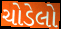
ચોડેલો